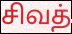
சிவத்